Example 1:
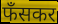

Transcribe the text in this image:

फँसकर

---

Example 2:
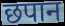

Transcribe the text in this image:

छपान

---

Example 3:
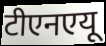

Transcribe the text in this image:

टीएनएयू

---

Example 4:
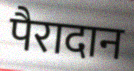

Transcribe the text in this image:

पैरादान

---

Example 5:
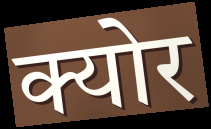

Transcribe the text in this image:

क्योर